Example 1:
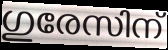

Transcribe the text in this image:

ഗുരേസിന്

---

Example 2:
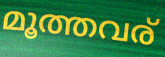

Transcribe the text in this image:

മൂത്തവര്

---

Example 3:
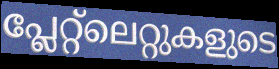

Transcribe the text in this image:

പ്ലേറ്റ്ലെറ്റുകളുടെ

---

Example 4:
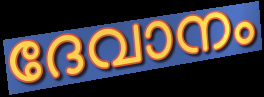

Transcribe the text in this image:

ദേവാനം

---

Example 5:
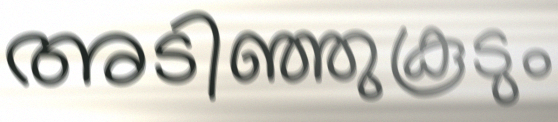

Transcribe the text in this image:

അടിഞ്ഞുകൂടും